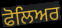
ਫੋਲਿਅਰ